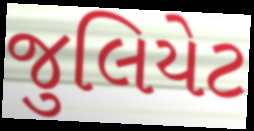
જુલિયેટ